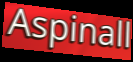
Aspinall